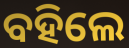
ବହିଲେ